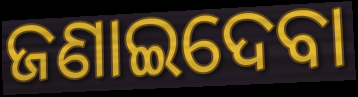
ଜଣାଇଦେବା